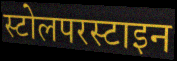
स्टोलपरस्टाइन